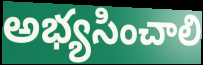
అభ్యసించాలి